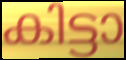
കിട്ടാ